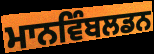
ਮਾਨਵਿੰਬਲਡਨ